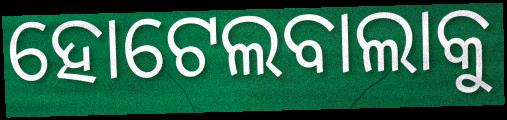
ହୋଟେଲବାଲାକୁ